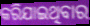
କରିଯାଇଥିବାର